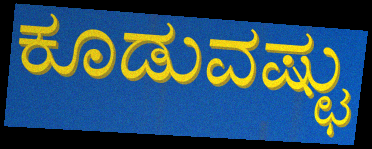
ಕೂಡುವಷ್ಟು